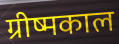
ग्रीष्मकाल